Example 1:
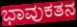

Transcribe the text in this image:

ಭಾವುಕತನ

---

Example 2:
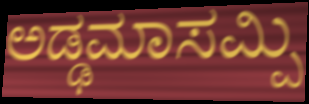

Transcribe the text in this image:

ಅಡ್ಢಮಾಸಮ್ಪಿ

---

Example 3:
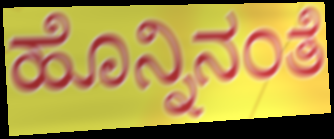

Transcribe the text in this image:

ಹೊನ್ನಿನಂತೆ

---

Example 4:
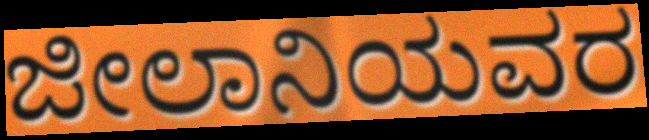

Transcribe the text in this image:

ಜೀಲಾನಿಯವರ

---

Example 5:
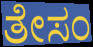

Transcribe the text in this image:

ತೇಸಂ